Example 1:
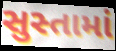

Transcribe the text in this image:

સુસ્તામાં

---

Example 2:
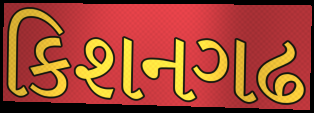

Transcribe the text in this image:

કિશનગઢ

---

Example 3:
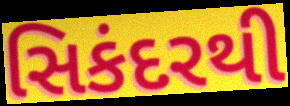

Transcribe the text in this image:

સિકંદરથી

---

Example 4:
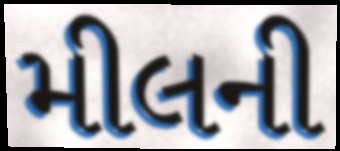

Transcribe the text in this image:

મીલની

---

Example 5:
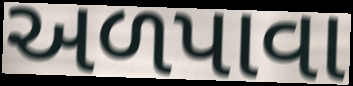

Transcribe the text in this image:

અળપાવા